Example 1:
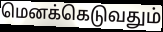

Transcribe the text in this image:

மெனக்கெடுவதும்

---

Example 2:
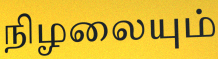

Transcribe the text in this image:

நிழலையும்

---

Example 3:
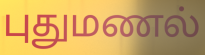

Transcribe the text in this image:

புதுமணல்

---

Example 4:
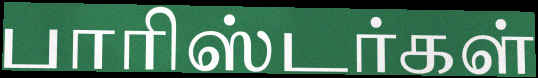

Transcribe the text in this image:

பாரிஸ்டர்கள்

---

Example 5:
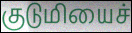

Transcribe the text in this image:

குடுமியைச்